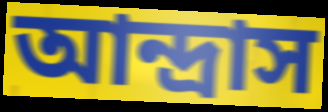
আন্দ্রাস